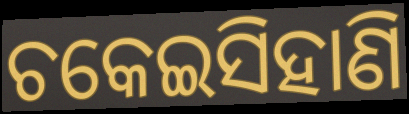
ଚକେଇସିହାଣି